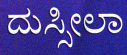
ದುಸ್ಸೀಲಾ